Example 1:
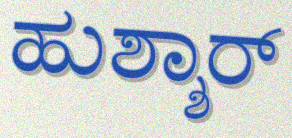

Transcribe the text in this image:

ಹುಶ್ಶಾರ್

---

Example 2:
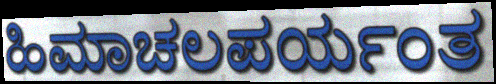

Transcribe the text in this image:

ಹಿಮಾಚಲಪರ್ಯಂತ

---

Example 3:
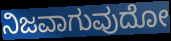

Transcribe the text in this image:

ನಿಜವಾಗುವುದೋ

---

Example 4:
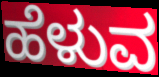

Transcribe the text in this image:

ಹೆಳುವ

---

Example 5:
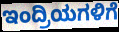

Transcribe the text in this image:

ಇಂದ್ರಿಯಗಳಿಗೆ